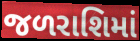
જળરાશિમાં